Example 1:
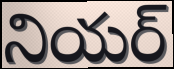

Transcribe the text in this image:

నియర్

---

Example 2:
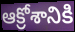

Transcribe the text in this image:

ఆక్రోశానికి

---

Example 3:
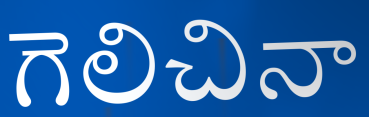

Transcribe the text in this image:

గెలిచినా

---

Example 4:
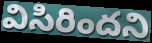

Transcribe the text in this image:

విసిరిందని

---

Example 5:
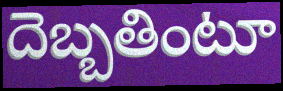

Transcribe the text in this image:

దెబ్బతింటూ